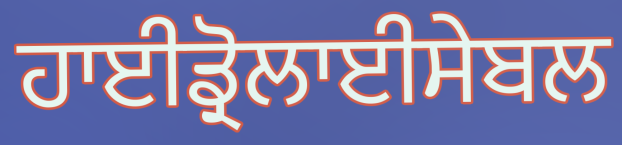
ਹਾਈਡ੍ਰੋਲਾਈਸੇਬਲ